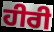
ਹੀਰੀ